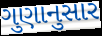
ગુણાનુસાર